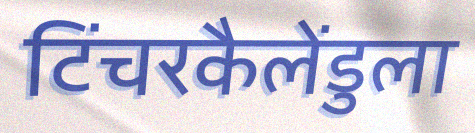
टिंचरकैलेंडुला